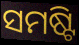
ସମଷ୍ଟି